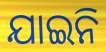
ଯାଇନି